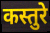
कस्तुरे